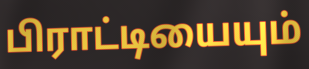
பிராட்டியையும்